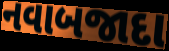
નવાબજાદા